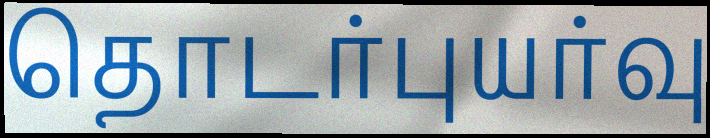
தொடர்புயர்வு